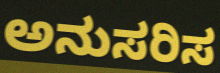
ಅನುಸರಿಸ